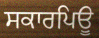
ਸਕਾਰਪਿਊ